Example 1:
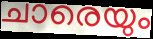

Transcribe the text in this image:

ചാരെയും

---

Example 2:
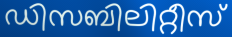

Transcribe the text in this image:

ഡിസബിലിറ്റീസ്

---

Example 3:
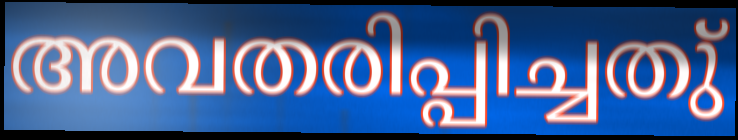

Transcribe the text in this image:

അവതരിപ്പിച്ചതു്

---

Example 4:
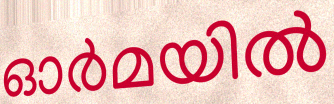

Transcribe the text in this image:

ഓർമയിൽ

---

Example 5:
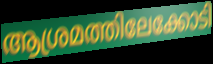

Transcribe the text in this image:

ആശ്രമത്തിലേക്കോടി